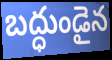
బద్ధుండైన